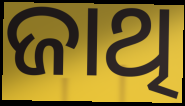
ଜାଥି